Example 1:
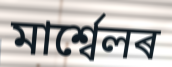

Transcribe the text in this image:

মাৰ্শ্বেলৰ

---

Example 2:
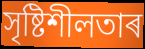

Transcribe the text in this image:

সৃষ্টিশীলতাৰ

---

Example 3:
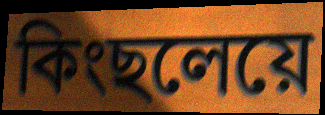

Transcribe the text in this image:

কিংছলেয়ে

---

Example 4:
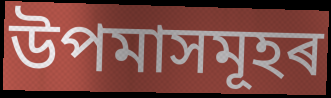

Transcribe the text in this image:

উপমাসমূহৰ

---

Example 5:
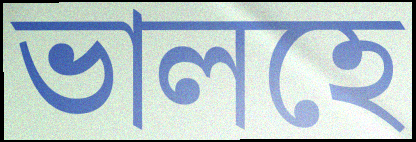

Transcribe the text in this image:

ভালহে